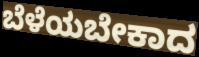
ಬೆಳೆಯಬೇಕಾದ